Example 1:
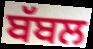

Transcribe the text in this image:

ਬੱਬਲ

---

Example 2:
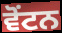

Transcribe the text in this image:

ਵੋਂਟਨ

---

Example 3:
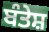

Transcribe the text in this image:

ਬੰਤੇਸ਼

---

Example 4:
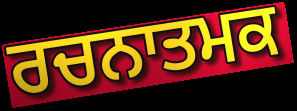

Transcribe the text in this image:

ਰਚਨਾਤਮਕ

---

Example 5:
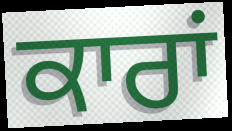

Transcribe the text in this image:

ਕਾਰਾਂ